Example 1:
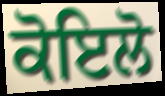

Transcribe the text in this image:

ਕੋਇਲੋ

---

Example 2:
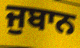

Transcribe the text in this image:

ਜੁਬਾਨ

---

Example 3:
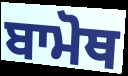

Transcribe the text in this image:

ਬਾਮੋਥ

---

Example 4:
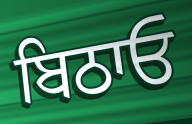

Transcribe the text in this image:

ਬਿਠਾਓ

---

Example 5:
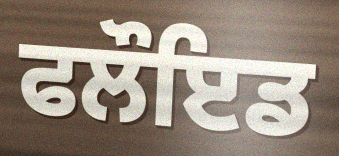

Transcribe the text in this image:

ਫਲੌਇਡ